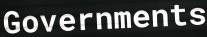
Governments